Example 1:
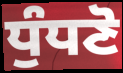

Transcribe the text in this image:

ਧੁੰਧਣੋ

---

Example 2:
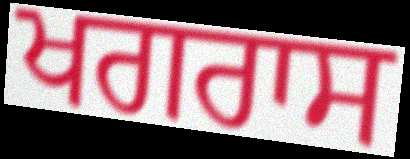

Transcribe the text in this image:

ਖਗਰਾਸ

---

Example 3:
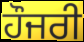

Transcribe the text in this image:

ਹੌਜਰੀ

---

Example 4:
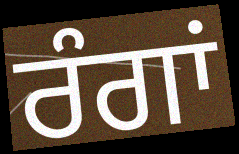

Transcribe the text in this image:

ਰੰਗਾਂ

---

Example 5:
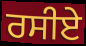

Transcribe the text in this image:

ਰਸੀਏ